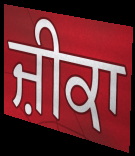
ਜ਼ੀਕਾ